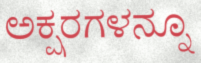
ಅಕ್ಷರಗಳನ್ನೂ